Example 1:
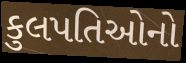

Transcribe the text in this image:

કુલપતિઓનો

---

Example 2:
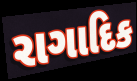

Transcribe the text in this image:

રાગાદિક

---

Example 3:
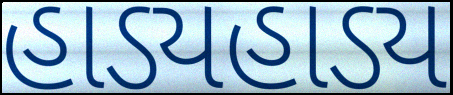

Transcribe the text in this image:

હાડ્યહાડ્ય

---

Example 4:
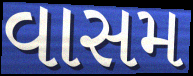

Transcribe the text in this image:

વાસમ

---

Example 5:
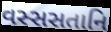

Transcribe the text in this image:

વસ્સસતાનિ